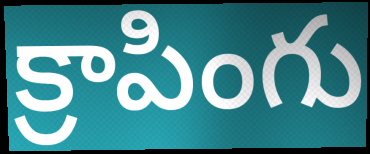
క్రాపింగు